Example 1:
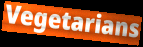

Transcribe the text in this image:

Vegetarians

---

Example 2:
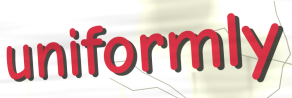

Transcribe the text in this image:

uniformly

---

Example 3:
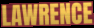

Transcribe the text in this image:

LAWRENCE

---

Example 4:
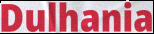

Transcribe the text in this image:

Dulhania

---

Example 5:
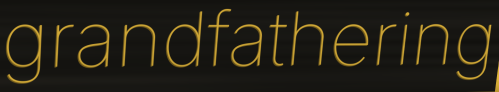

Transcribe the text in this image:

grandfathering